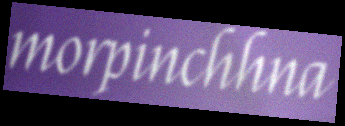
morpinchhna